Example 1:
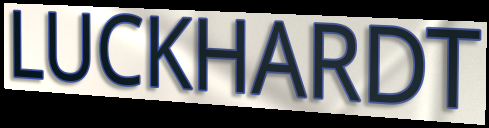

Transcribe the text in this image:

LUCKHARDT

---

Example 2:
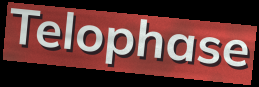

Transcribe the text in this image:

Telophase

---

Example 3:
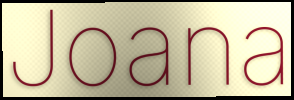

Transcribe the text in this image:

Joana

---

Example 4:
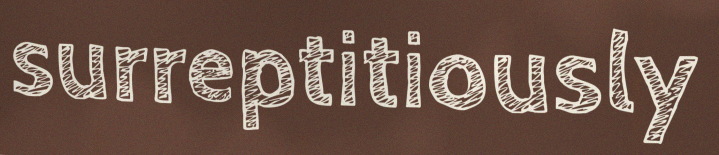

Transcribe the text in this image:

surreptitiously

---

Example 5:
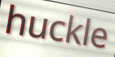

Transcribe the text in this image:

huckle